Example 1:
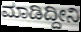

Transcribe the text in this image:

ಮಾಡಿದ್ದೀನಿ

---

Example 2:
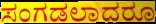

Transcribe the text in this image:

ಸಂಗಡಲಾದರೂ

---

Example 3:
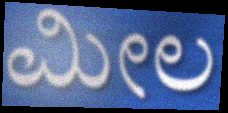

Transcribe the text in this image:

ಮೀಲ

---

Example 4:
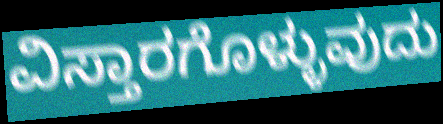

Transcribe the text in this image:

ವಿಸ್ತಾರಗೊಳ್ಳುವುದು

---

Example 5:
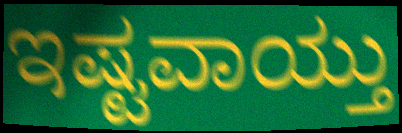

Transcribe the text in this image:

ಇಷ್ಟವಾಯ್ತು